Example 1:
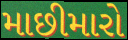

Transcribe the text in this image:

માછીમારો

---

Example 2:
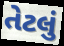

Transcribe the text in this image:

તેટલું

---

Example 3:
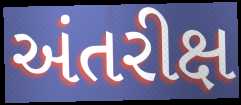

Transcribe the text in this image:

અંતરીક્ષ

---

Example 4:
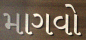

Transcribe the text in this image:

માગવો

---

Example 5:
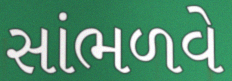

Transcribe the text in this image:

સાંભળવે